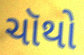
ચૉથો